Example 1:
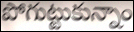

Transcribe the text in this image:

పోగుట్టుకున్నాం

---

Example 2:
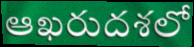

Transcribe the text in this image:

ఆఖరుదశలో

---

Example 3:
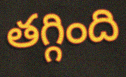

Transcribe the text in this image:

తగ్గింది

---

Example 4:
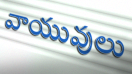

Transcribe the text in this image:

వాయువులు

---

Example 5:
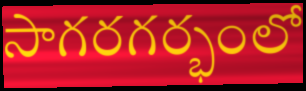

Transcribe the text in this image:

సాగరగర్భంలో